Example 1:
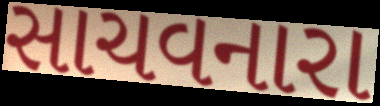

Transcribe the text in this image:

સાચવનારા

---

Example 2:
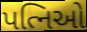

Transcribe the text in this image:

પત્નિઓ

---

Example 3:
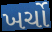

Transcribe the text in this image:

ખર્ચો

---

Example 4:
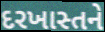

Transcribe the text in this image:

દરખાસ્તને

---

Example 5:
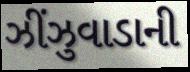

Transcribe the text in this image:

ઝીંઝુવાડાની